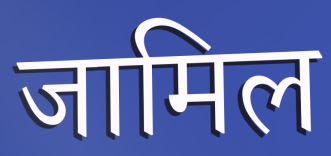
जामिल